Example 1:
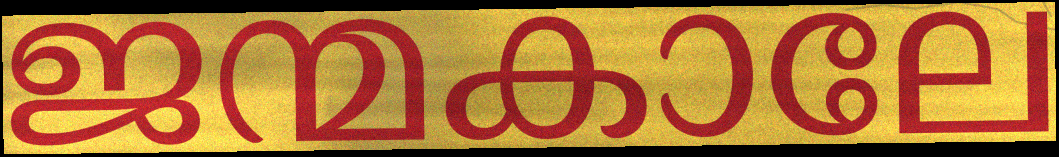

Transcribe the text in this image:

ജന്മകാലേ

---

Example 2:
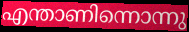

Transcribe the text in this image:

എന്താണിന്നൊന്നു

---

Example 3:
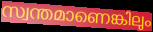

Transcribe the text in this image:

സ്വന്തമാണെങ്കിലും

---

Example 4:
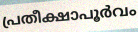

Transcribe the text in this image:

പ്രതീക്ഷാപൂർവം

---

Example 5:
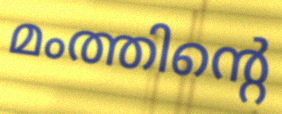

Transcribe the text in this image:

മംത്തിന്റെ